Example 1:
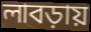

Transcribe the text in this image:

লাবড়ায়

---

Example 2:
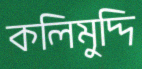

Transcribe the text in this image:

কলিমুদ্দি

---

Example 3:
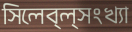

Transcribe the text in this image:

সিলেব্‌ল্‌সংখ্যা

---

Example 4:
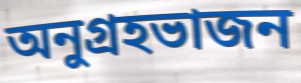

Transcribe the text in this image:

অনুগ্রহভাজন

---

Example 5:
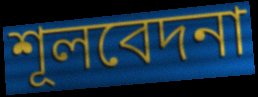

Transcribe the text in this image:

শূলবেদনা